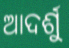
ଆଦର୍ଶୁ